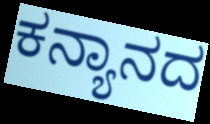
ಕನ್ಯಾನದ